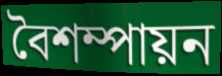
বৈশম্পায়ন